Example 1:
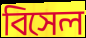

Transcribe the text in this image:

বিসেল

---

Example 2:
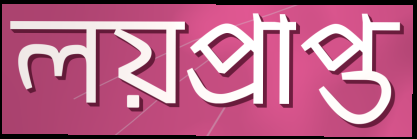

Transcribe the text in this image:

লয়প্রাপ্ত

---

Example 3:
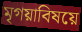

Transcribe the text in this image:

মৃগয়াবিষয়ে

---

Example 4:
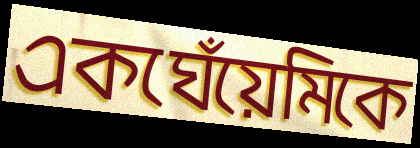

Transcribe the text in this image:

একঘেঁয়েমিকে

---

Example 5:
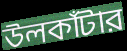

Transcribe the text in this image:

উলকাঁটার